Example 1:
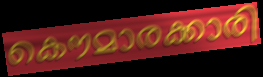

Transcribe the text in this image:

കൌമാരക്കാരി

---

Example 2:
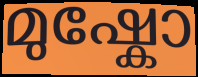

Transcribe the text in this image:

മുഷ്കോ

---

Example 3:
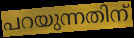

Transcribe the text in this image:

പറയുന്നതിന്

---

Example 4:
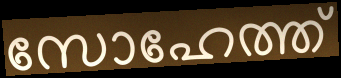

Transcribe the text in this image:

സോഹേത്ത്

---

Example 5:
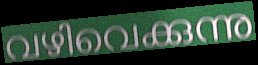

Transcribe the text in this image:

വഴിവെക്കുന്നു